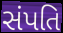
સંપતિ